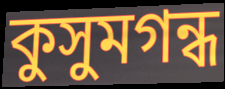
কুসুমগন্ধ